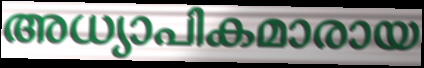
അധ്യാപികമാരായ